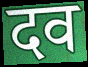
दव